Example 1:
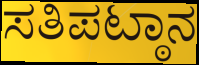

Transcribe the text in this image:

ಸತಿಪಟ್ಠಾನ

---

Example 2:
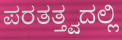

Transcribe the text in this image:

ಪರತತ್ತ್ವದಲ್ಲಿ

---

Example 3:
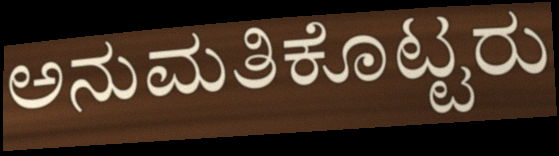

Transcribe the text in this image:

ಅನುಮತಿಕೊಟ್ಟರು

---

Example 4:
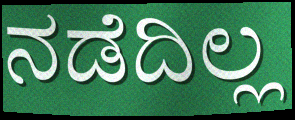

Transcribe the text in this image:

ನಡೆದಿಲ್ಲ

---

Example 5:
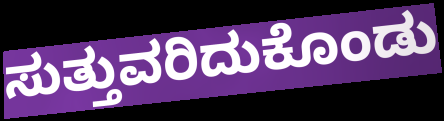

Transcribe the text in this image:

ಸುತ್ತುವರಿದುಕೊಂಡು